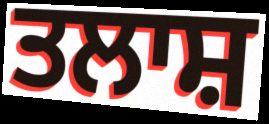
ਤਲਾਸ਼